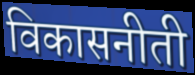
विकासनीती